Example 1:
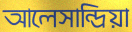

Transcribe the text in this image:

আলেসান্দ্রিয়া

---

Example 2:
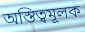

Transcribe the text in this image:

অস্তিত্বমূলক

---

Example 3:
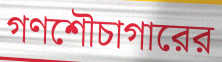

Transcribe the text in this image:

গণশৌচাগারের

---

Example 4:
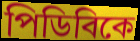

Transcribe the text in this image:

পিডিবিকে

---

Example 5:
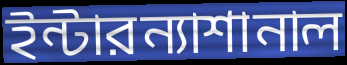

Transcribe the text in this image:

ইন্টারন্যাশানাল